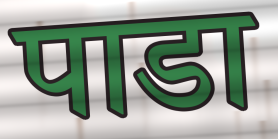
पाडा